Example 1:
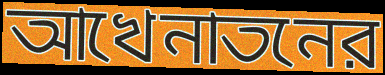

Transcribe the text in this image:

আখেনাতনের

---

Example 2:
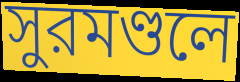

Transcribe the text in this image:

সুরমণ্ডলে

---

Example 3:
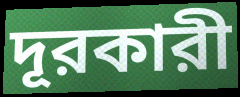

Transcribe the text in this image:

দূরকারী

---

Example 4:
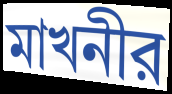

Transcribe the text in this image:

মাখনীর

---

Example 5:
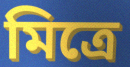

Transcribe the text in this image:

মিত্রে